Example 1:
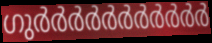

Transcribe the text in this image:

ഗുർർർർർർർർർർർ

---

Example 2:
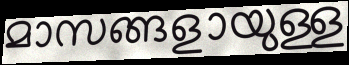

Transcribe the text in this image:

മാസങ്ങളായുള്ള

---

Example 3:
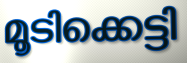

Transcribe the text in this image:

മൂടിക്കെട്ടി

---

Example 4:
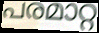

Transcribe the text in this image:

പരമാറ്റ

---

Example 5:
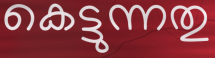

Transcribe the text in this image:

കെട്ടുന്നതു